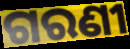
ଗରଣୀ